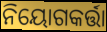
ନିୟୋଗକର୍ତ୍ତା